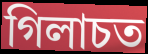
গিলাচত